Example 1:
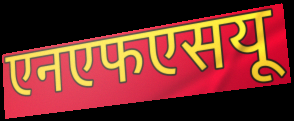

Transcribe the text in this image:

एनएफएसयू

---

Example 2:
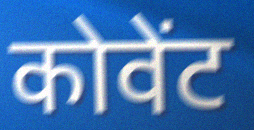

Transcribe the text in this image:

कोवेंट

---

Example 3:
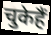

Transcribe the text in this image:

चुकेहैं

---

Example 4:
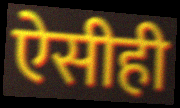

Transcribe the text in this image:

ऐसीही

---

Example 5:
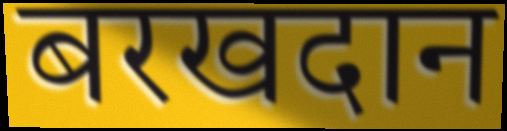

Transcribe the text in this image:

बरखदान